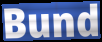
Bund